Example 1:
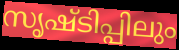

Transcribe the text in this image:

സൃഷ്ടിപ്പിലും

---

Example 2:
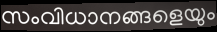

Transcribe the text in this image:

സംവിധാനങ്ങളെയും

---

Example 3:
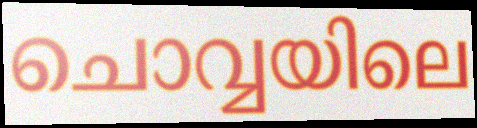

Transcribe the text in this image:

ചൊവ്വയിലെ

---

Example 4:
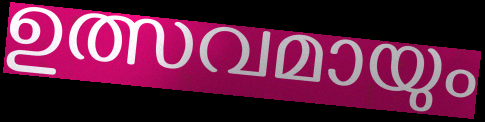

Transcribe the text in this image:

ഉത്സവമായും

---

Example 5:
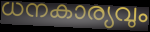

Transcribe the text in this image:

ധനകാര്യവും